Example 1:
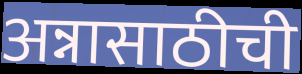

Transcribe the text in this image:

अन्नासाठीची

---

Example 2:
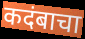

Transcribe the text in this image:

कदंबाचा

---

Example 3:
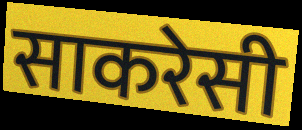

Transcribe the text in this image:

साकरेसी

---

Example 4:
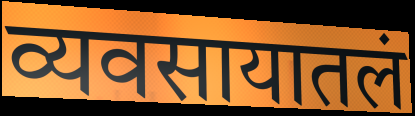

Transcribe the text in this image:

व्यवसायातलं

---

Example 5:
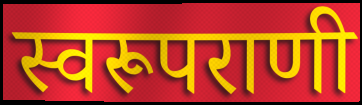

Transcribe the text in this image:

स्वरूपराणी